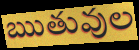
ఋతువుల